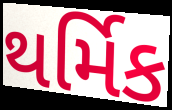
થર્મિક